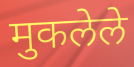
मुकलेले